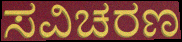
ಸವಿಚರಣ